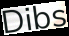
Dibs